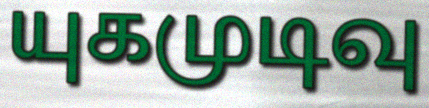
யுகமுடிவு